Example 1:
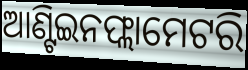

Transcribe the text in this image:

ଆଣ୍ଟିଇନଫ୍ଲାମେଟରି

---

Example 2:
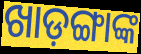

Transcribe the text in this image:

ଖାଡ଼ଙ୍ଗାଙ୍କ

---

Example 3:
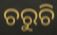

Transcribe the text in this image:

ଚରୁଚି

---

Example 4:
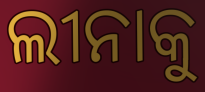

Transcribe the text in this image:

ଲୀନାକୁ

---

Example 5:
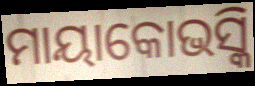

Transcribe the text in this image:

ମାୟାକୋଭସ୍କି